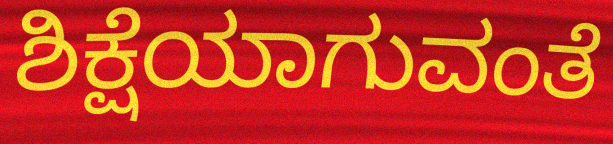
ಶಿಕ್ಷೆಯಾಗುವಂತೆ